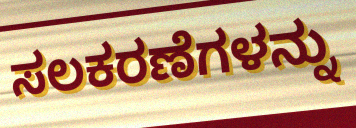
ಸಲಕರಣೆಗಳನ್ನು